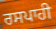
ਰਸਪਾਹੀ